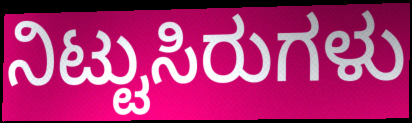
ನಿಟ್ಟುಸಿರುಗಳು